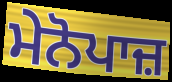
ਮੇਨੋਪਾਜ਼